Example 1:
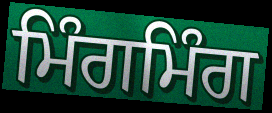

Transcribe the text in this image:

ਮਿੰਗਮਿੰਗ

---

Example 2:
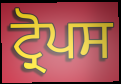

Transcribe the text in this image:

ਟ੍ਰੋਪਸ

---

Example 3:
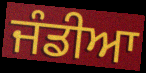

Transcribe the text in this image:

ਜੰਡੀਆ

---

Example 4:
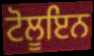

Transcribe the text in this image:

ਟੋਲੂਇਨ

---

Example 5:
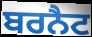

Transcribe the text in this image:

ਬਰਨੈਟ